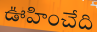
ఊహించేది